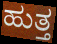
ಹುತ್ತ